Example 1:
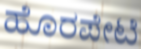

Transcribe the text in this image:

ಹೊರಪೇಟೆ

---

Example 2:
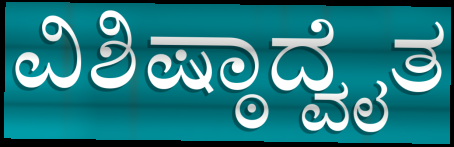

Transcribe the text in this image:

ವಿಶಿಷ್ಠಾದ್ವೈತ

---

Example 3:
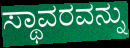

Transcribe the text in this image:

ಸ್ಥಾವರವನ್ನು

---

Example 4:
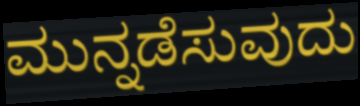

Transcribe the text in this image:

ಮುನ್ನಡೆಸುವುದು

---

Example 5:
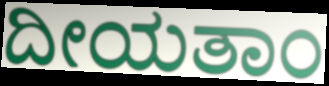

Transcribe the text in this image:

ದೀಯತಾಂ